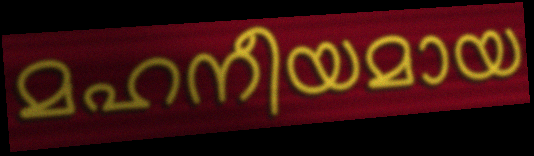
മഹനീയമായ